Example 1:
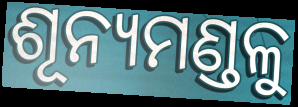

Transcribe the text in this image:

ଶୂନ୍ୟମଣ୍ଡଳୁ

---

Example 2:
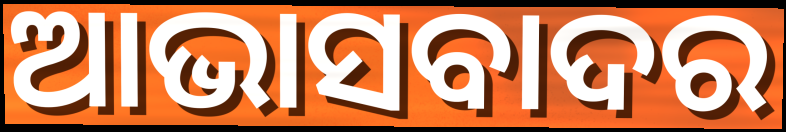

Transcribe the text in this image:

ଆଭାସବାଦର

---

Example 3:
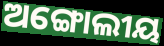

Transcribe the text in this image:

ଅଙ୍ଗୋଲୀୟ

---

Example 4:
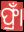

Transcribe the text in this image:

ଫ୍ରାଁ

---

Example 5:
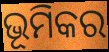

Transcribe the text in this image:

ଭୂମିକର